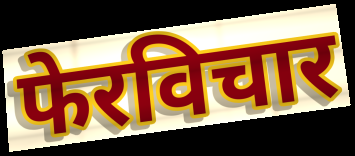
फेरविचार